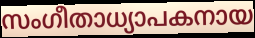
സംഗീതാധ്യാപകനായ